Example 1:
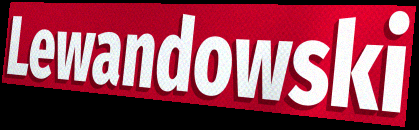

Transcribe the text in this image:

Lewandowski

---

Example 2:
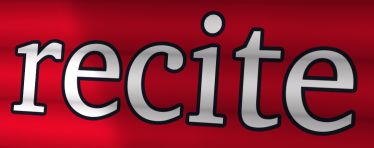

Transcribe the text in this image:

recite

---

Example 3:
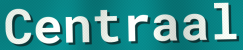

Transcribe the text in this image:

Centraal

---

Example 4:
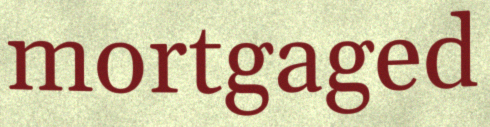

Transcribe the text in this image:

mortgaged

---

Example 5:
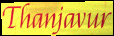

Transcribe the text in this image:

Thanjavur